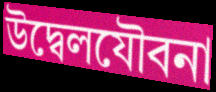
উদ্বেলযৌবনা